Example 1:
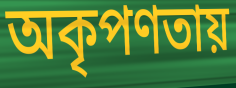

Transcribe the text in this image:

অকৃপণতায়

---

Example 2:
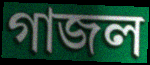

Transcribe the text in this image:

গাজল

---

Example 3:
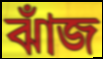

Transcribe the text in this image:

ঝাঁজ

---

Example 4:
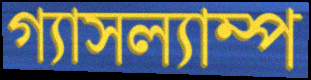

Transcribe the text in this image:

গ্যাসল্যাম্প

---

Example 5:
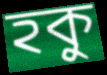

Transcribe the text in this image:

হকু